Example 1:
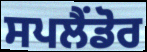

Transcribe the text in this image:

ਸਪਲੈਂਡੋਰ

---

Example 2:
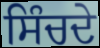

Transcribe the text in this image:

ਸਿੰਚਦੇ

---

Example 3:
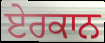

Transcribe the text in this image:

ਏਰਕਾਨ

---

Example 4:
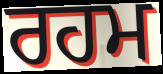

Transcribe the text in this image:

ਰਹਮ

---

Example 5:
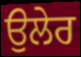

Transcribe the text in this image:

ਉਲੇਰ